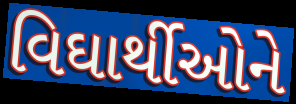
વિઘાર્થીઓને